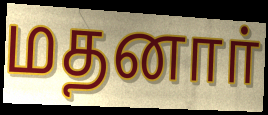
மதனார்